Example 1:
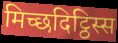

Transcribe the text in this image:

मिच्छदिट्ठिस्स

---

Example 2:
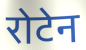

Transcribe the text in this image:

रोटेन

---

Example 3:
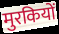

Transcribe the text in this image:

मुरकियों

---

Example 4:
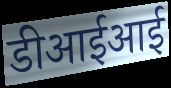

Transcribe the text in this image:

डीआईआई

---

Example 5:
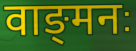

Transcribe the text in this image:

वाङ्मनः